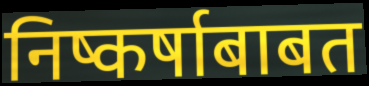
निष्कर्षाबाबत